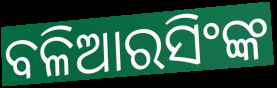
ବଳିଆରସିଂଙ୍କ